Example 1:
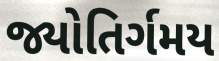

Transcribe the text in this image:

જ્યોતિર્ગમય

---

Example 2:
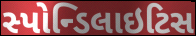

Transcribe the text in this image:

સ્પોન્ડિલાઇટિસ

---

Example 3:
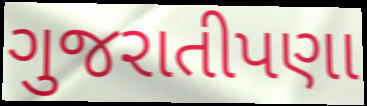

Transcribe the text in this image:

ગુજરાતીપણા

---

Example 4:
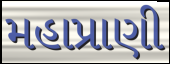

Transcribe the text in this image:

મહાપ્રાણી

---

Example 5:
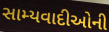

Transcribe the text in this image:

સામ્યવાદીઓની